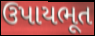
ઉપાયભૂત